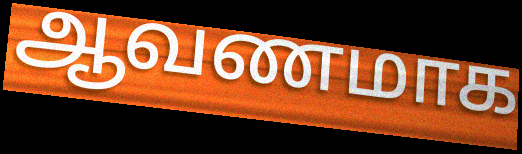
ஆவணமாக